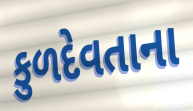
કુળદેવતાના